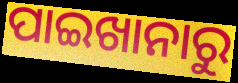
ପାଇଖାନାରୁ